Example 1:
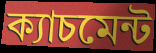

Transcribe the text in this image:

ক্যাচমেন্ট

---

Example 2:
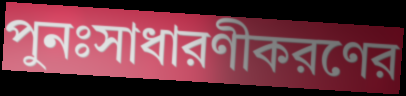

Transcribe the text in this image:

পুনঃসাধারণীকরণের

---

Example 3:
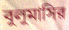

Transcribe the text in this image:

বুলুমাসির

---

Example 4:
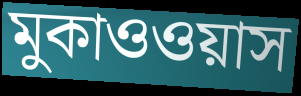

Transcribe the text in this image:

মুকাওওয়াস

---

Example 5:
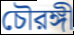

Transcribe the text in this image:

চৌরঙ্গী